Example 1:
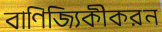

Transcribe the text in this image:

বাণিজ্যিকীকরন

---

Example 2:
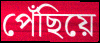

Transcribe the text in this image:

পেঁছিয়ে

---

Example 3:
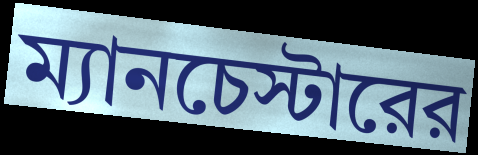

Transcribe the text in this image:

ম্যানচেস্টারের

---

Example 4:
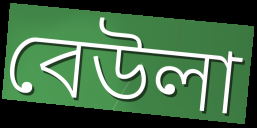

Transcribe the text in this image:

বেউলা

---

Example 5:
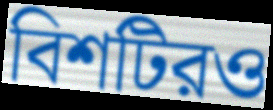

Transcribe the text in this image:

বিশটিরও